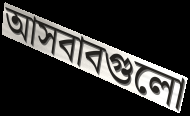
আসবাবগুলো